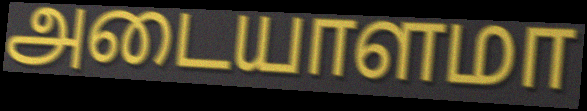
அடையாளமா